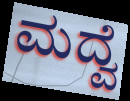
ಮದ್ವೆ